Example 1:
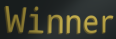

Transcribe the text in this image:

Winner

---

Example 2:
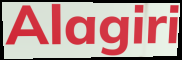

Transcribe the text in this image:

Alagiri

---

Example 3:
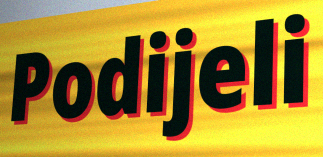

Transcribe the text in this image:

Podijeli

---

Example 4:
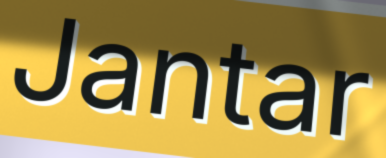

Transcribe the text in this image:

Jantar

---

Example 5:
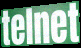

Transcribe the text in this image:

telnet